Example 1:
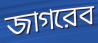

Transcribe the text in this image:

জাগরেব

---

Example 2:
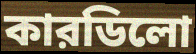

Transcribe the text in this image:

কারডিলো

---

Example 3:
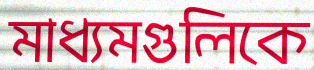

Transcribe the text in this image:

মাধ্যমগুলিকে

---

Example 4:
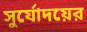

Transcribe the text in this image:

সুর্যোদয়ের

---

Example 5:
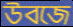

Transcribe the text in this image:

উবজে